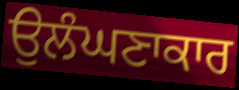
ਉਲੰਘਣਾਕਾਰ